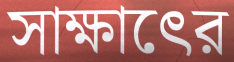
সাক্ষাৎের